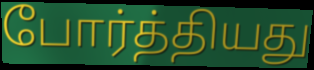
போர்த்தியது